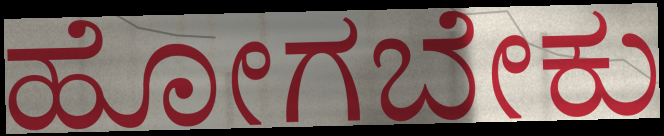
ಹೋಗಬೇಕು